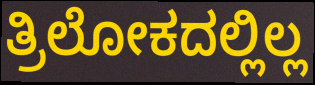
ತ್ರಿಲೋಕದಲ್ಲಿಲ್ಲ